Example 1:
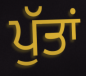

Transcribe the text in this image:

ਪੁੱਤਾਂ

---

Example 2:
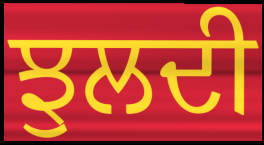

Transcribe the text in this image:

ਝੁਲਦੀ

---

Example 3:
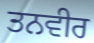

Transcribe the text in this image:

ਤਨਵੀਰ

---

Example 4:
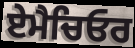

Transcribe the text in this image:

ਏਮੈਚਿਓਰ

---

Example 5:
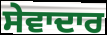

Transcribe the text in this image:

ਸੇਵਾਦਾਰ